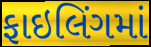
ફાઇલિંગમાં